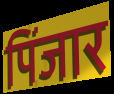
पिंजार